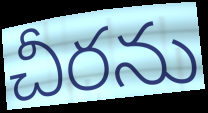
చీరను